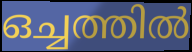
ഒച്ചത്തിൽ